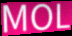
MOL